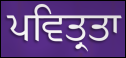
ਪਵਿਤ੍ਰਤਾ